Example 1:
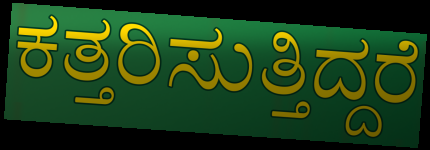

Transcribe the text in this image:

ಕತ್ತರಿಸುತ್ತಿದ್ದರೆ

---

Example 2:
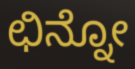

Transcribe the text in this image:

ಛಿನ್ನೋ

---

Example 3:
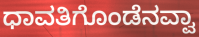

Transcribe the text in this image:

ಧಾವತಿಗೊಂಡೆನವ್ವಾ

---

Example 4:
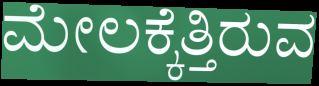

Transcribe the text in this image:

ಮೇಲಕ್ಕೆತ್ತಿರುವ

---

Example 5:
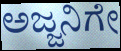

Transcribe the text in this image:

ಅಜ್ಜನಿಗೇ